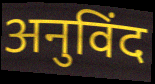
अनुविंद